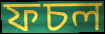
ফচল